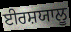
ਈਰਸ਼ਯਾਲੂ